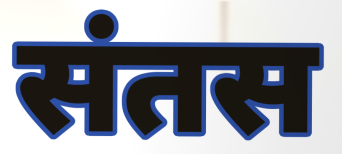
संतस